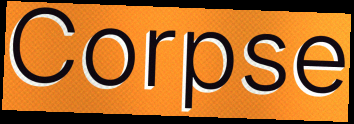
Corpse